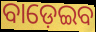
ବାଡ଼େଇବ